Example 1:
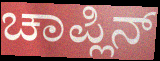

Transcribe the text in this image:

ಚಾಪ್ಲಿನ್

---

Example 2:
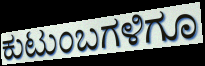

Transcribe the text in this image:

ಕುಟುಂಬಗಳಿಗೂ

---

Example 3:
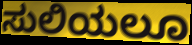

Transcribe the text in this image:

ಸುಲಿಯಲೂ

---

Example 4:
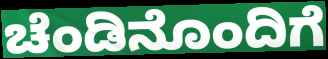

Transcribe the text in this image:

ಚೆಂಡಿನೊಂದಿಗೆ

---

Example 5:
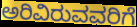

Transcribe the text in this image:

ಅರಿವಿರುವವರಿಗೆ